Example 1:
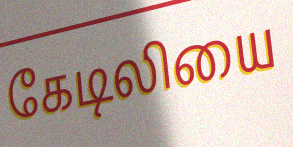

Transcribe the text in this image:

கேடிலியை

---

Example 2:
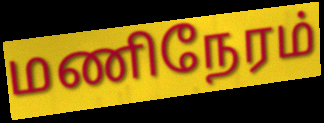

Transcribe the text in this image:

மணிநேரம்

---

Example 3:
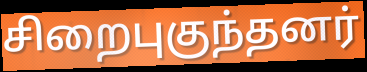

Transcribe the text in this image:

சிறைபுகுந்தனர்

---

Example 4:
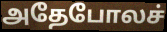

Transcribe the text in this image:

அதேபோலச்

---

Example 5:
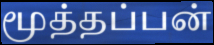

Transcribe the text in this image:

மூத்தப்பன்